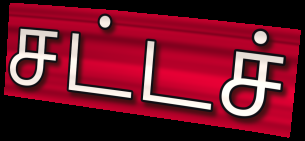
சட்டச்